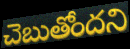
చెబుతోందని